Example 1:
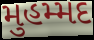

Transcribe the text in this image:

મુહમ્મદ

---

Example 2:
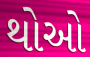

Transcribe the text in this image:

થોઓ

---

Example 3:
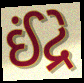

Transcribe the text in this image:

ઈંદ્રે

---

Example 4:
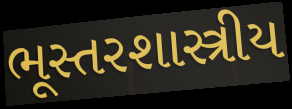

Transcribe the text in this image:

ભૂસ્તરશાસ્ત્રીય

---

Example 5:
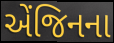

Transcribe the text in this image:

એંજિનના